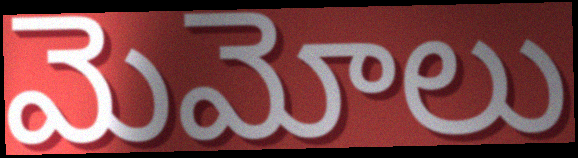
మెమోలు